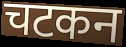
चटकन